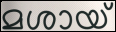
മശായ്